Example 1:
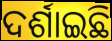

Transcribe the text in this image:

ଦର୍ଶାଇଛି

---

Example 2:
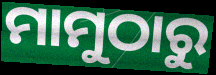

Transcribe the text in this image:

ମାମୁଠାରୁ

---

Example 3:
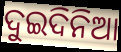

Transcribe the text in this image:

ଦୁଇଦିନିଆ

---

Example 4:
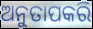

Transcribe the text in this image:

ଅନୁତାପକରି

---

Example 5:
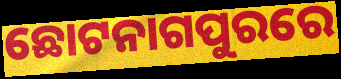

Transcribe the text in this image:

ଛୋଟନାଗପୁରରେ